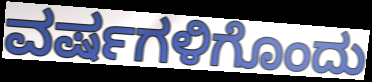
ವರ್ಷಗಳಿಗೊಂದು